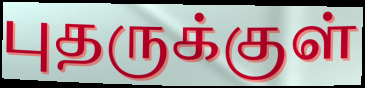
புதருக்குள்